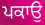
ਪਕਾਉ